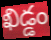
ఖిడ్డం